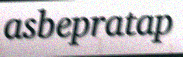
asbepratap